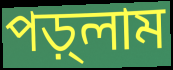
পড়্‌লাম